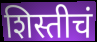
शिस्तीचं